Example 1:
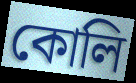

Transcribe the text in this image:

কোলি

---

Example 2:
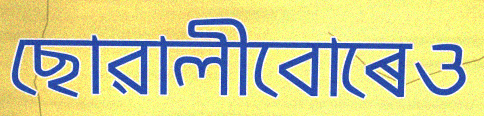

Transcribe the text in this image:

ছোৱালীবোৰেও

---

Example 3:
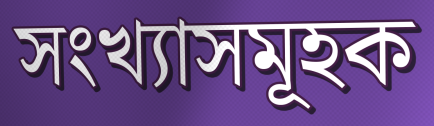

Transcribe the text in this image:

সংখ্যাসমূহক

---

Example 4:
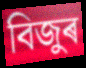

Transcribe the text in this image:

বিজুৰ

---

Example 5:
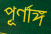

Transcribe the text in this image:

পূৰ্ণাঙ্গ